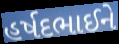
હર્ષદભાઈને